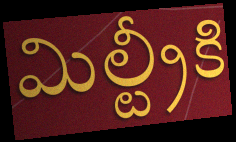
మిల్ట్రీకి